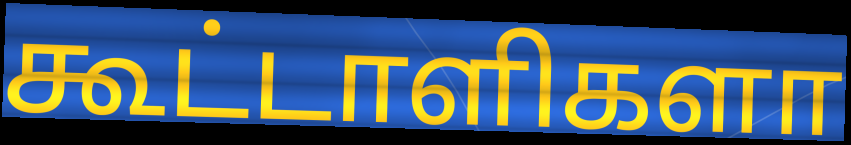
கூட்டாளிகளா